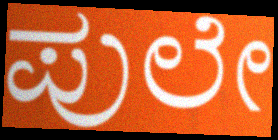
ಪುಲೇ